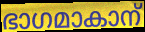
ഭാഗമാകാന്